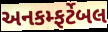
અનકમ્ફર્ટેબલ